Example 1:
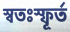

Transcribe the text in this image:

স্বতঃস্ফূর্ত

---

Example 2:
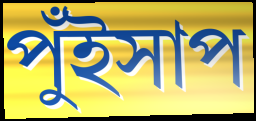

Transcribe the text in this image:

পুঁইসাপ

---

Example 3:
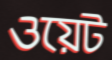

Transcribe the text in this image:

ওয়েট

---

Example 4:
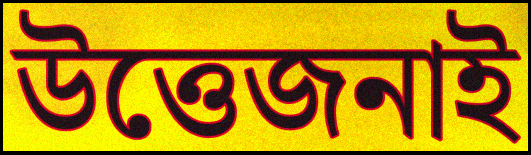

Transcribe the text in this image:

উত্তেজনাই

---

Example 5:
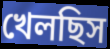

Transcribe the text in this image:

খেলছিস